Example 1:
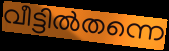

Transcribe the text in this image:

വീട്ടിൽതന്നെ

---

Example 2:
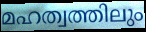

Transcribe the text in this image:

മഹത്വത്തിലും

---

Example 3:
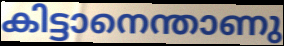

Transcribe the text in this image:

കിട്ടാനെന്താണു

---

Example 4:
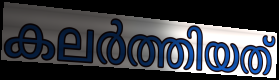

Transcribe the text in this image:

കലർത്തിയത്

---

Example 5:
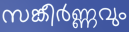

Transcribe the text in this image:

സങ്കീർണ്ണവും